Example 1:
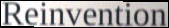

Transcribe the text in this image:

Reinvention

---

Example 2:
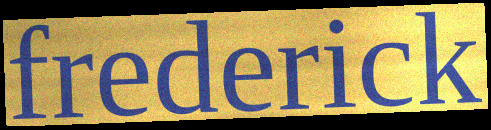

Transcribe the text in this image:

frederick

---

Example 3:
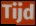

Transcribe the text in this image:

Tijd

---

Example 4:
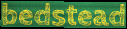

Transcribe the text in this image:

bedstead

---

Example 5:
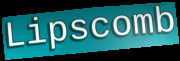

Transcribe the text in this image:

Lipscomb